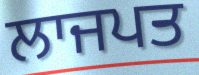
ਲਾਜਪਤ